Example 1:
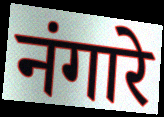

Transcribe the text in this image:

नंगारे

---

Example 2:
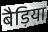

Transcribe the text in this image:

बैड़िया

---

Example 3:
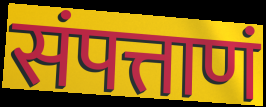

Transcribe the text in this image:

संपत्ताणं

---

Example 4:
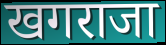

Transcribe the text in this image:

खगराजा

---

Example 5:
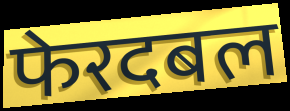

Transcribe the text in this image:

फेरदबल